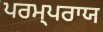
ਪਰਮ੍ਪਰਾਯ